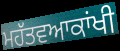
ਮਹੱਤਵਆਕਾਂਖੀ